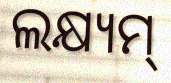
ଲକ୍ଷ୍ୟମ୍